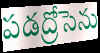
పడద్రోసెను